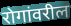
रोगांवरील